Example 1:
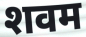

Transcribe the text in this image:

शवम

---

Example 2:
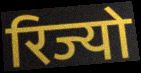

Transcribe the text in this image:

रिज्यो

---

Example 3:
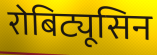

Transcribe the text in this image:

रोबिट्यूसिन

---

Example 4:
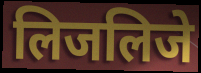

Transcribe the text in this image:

लिजलिजे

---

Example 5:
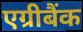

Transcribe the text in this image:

एग्रीबैंक